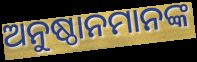
ଅନୁଷ୍ଠାନମାନଙ୍କ